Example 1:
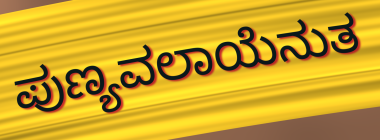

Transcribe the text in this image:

ಪುಣ್ಯವಲಾಯೆನುತ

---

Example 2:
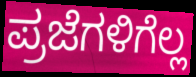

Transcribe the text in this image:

ಪ್ರಜೆಗಳಿಗೆಲ್ಲ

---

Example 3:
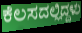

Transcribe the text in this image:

ಕೆಲಸದಲ್ಲಿದ್ದಳು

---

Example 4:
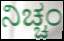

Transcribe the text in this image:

ನಿಚ್ಚಂ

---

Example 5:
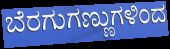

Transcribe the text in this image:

ಬೆರಗುಗಣ್ಣುಗಳಿಂದ